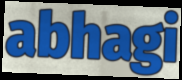
abhagi